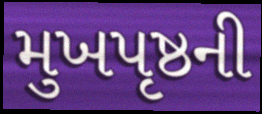
મુખપૃષ્ઠની